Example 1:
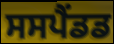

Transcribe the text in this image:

ਸਸਪੈਂਡਡ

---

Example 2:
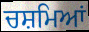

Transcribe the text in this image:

ਚਸ਼ਮਿਆਂ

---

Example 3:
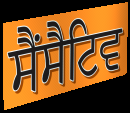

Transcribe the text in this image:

ਸੈਂਸੈਟਿਵ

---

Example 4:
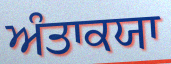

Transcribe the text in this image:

ਅੰਤਾਕਯਾ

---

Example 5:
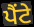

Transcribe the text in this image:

ਪੈਂਟੇ